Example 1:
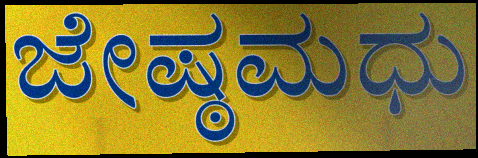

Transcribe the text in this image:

ಜೇಷ್ಠಮಧು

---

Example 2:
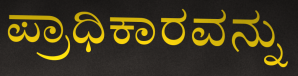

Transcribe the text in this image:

ಪ್ರಾಧಿಕಾರವನ್ನು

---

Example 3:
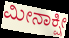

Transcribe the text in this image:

ಮೀನಾಕ್ಷೀ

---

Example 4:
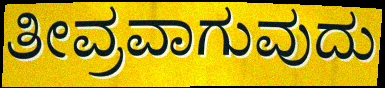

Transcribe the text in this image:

ತೀವ್ರವಾಗುವುದು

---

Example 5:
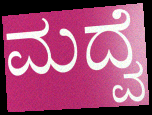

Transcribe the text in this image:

ಮದ್ವೆ